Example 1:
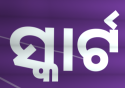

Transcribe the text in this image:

ସ୍କାର୍ଟ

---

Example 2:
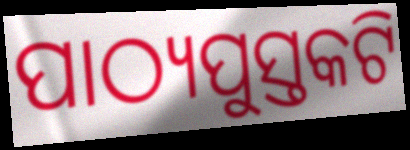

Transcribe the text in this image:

ପାଠ୍ୟପୁସ୍ତକଟି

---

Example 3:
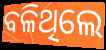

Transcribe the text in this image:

ବଳିଥିଲେ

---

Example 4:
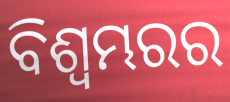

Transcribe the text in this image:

ବିଶ୍ଵମ୍ଭରର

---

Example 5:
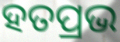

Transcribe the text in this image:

ହତପ୍ରଭ